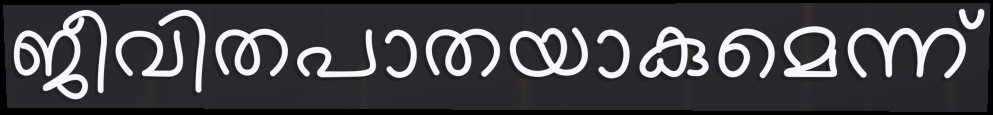
ജീവിതപാതയാകുമെന്ന്